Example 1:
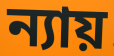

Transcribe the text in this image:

ন্যায়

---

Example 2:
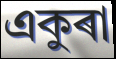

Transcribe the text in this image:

একুৰা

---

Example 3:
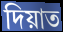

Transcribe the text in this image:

দিয়াত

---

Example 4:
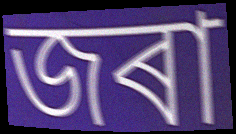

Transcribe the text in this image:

জৰা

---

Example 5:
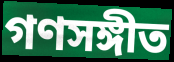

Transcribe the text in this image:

গণসঙ্গীত